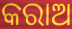
କରାଅ